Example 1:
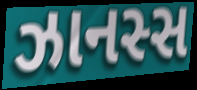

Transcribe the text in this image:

ઝાનસ્સ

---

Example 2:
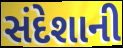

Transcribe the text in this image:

સંદેશાની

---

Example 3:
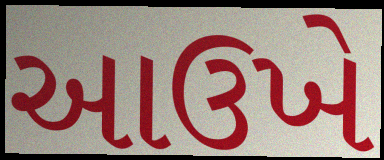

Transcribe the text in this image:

આઉખે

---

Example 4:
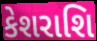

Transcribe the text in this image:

કેશરાશિ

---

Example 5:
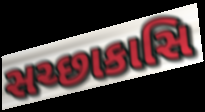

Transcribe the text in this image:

સચ્છાકાસિ